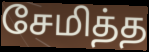
சேமித்த